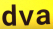
dva